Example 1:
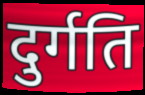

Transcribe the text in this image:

दुर्गति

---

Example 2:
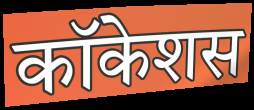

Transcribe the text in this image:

कॉकेशस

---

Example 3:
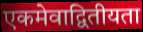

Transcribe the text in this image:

एकमेवाद्वितीयता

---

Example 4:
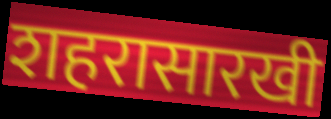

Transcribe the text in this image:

शहरासारखी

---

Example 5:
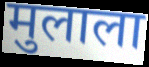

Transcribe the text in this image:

मुलाला